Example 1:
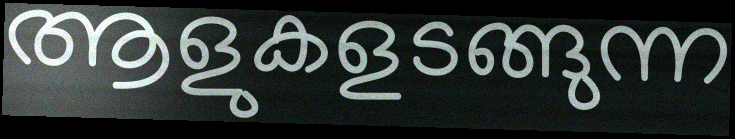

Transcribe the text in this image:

ആളുകളടങ്ങുന്ന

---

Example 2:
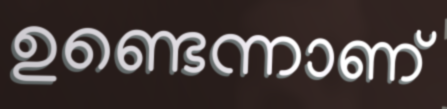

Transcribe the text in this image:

ഉണ്ടെന്നാണ്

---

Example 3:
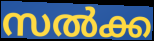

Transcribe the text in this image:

സൽക്ക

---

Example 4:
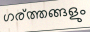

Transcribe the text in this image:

ഗര്ത്തങ്ങളും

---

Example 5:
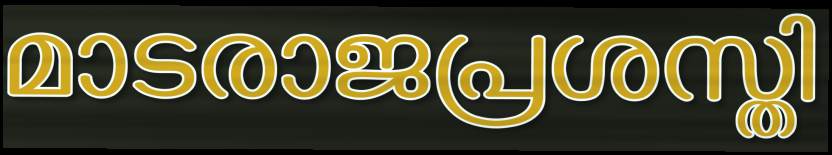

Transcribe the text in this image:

മാടരാജപ്രശസ്തി